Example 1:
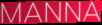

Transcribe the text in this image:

MANNA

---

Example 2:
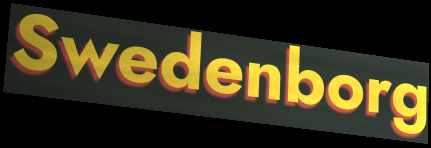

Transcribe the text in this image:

Swedenborg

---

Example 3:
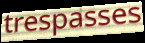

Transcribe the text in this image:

trespasses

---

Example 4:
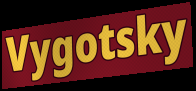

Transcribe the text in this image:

Vygotsky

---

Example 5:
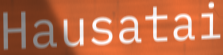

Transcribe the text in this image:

Hausatai